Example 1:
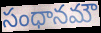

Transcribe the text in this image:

సంధానమౌ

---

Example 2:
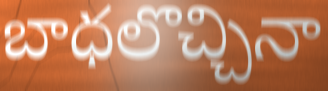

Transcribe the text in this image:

బాధలొచ్చినా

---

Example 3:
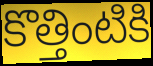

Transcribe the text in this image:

కొత్తింటికి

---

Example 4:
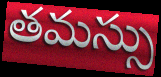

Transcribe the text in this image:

తమస్సు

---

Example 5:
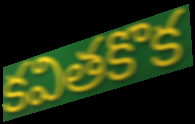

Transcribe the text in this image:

కవితకొక